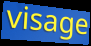
visage